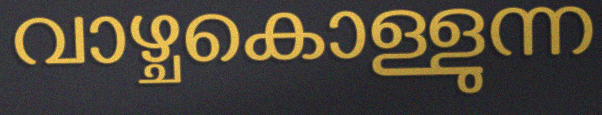
വാഴ്ചകൊള്ളുന്ന